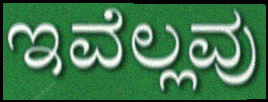
ಇವೆಲ್ಲವು